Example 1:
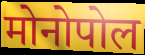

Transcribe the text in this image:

मोनोपोल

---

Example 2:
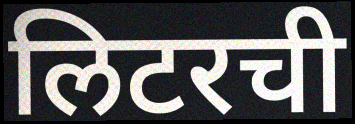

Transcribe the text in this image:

लिटरची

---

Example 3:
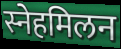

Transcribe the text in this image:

स्नेहमिलन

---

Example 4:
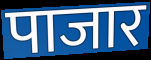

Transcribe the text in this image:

पाजार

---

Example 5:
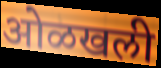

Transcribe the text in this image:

ओळखली